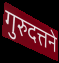
गुरुदत्तने